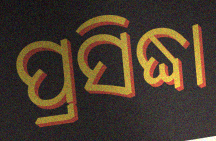
ପ୍ରସିଦ୍ଧା